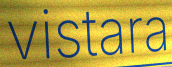
vistara